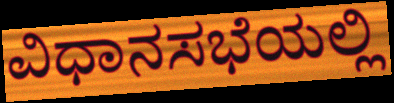
ವಿಧಾನಸಭೆಯಲ್ಲಿ